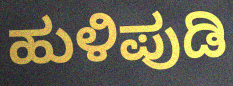
ಹುಳಿಪುಡಿ